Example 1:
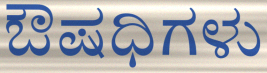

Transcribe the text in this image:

ಔಷಧಿಗಳು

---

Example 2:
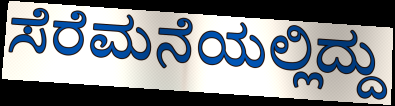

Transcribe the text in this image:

ಸೆರೆಮನೆಯಲ್ಲಿದ್ದು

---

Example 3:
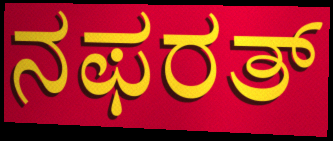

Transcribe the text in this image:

ನಫರತ್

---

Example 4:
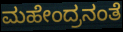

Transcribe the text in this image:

ಮಹೇಂದ್ರನಂತೆ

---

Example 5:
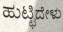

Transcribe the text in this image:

ಹುಟ್ಟಿದೇಳು